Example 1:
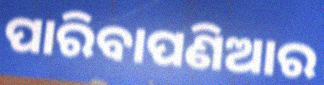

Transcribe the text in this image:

ପାରିବାପଣିଆର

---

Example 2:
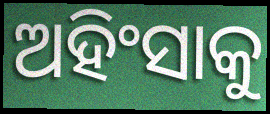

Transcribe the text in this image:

ଅହିଂସାକୁ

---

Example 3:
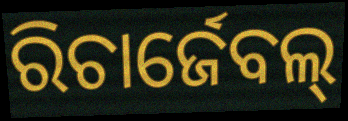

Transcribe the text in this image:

ରିଚାର୍ଜେବଲ୍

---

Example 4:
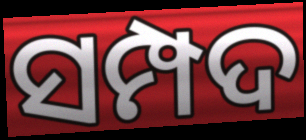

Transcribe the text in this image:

ସମ୍ପଦ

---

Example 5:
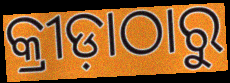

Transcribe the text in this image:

କ୍ରୀଡ଼ାଠାରୁ